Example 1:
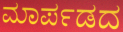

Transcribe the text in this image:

ಮಾರ್ಪಡದ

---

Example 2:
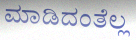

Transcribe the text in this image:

ಮಾಡಿದಂತೆಲ್ಲ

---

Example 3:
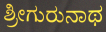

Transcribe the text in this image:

ಶ್ರೀಗುರುನಾಥ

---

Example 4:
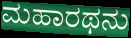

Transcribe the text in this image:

ಮಹಾರಥನು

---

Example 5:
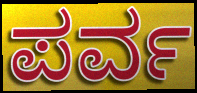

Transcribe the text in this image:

ಪರ್ವ